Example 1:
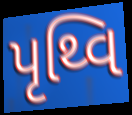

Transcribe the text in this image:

પૃથ્વિ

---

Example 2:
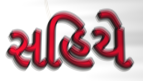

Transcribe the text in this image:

સહિયે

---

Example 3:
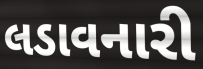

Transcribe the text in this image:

લડાવનારી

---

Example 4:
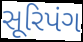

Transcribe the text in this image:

સૂરિપંગ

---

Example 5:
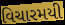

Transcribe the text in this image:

વિચારમયી